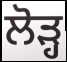
ਲੋੜ੍ਹ